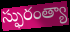
స్ఫురంత్యా